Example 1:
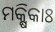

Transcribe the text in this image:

ମକ୍ଷିକାଃ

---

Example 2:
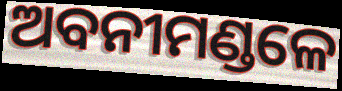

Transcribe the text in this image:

ଅବନୀମଣ୍ଡଳେ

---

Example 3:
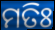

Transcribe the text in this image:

ମତିଃ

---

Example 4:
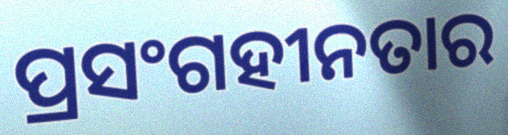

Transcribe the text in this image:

ପ୍ରସଂଗହୀନତାର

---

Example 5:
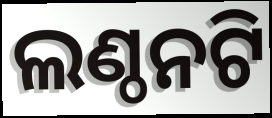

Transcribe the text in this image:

ଲଣ୍ଠନଟି